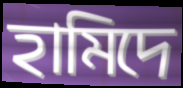
হামিদে